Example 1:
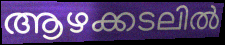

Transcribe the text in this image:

ആഴക്കടലിൽ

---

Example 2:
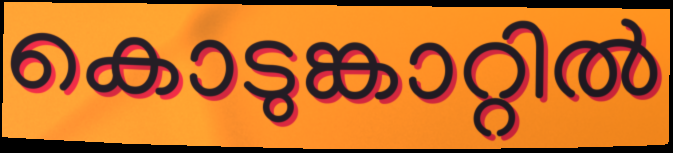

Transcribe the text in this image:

കൊടുങ്കാറ്റിൽ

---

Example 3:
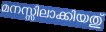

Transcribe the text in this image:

മനസ്സിലാക്കിയതു്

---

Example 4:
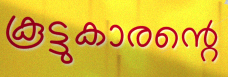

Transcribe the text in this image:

കൂട്ടുകാരന്റെ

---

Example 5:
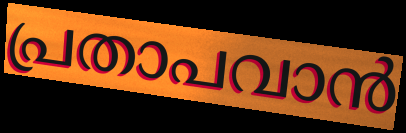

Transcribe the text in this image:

പ്രതാപവാൻ